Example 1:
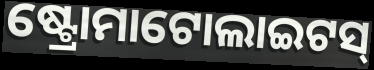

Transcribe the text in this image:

ଷ୍ଟ୍ରୋମାଟୋଲାଇଟସ୍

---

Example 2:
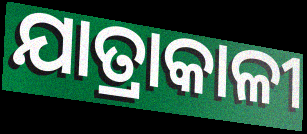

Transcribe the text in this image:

ଯାତ୍ରାକାଳୀ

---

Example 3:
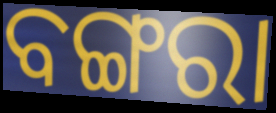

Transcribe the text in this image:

ବଙ୍ଗରା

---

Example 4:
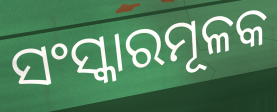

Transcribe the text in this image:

ସଂସ୍କାରମୂଳକ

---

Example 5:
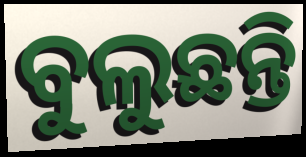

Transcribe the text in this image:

ବୁଲୁଛନ୍ତି